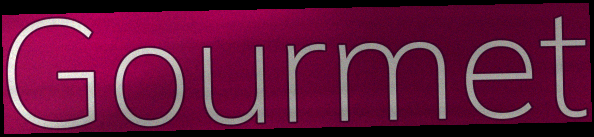
Gourmet